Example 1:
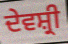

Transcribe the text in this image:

ਦੇਵਸ਼੍ਰੀ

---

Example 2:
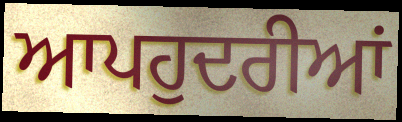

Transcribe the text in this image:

ਆਪਹੁਦਰੀਆਂ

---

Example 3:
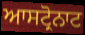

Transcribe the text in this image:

ਆਸਟ੍ਰੋਨਾਟ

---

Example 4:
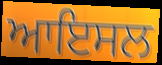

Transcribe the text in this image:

ਆਇਸਲ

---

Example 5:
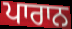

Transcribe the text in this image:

ਪਾਰਾਨ